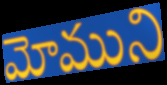
మోముని